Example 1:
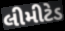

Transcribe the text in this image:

લીમીટેડ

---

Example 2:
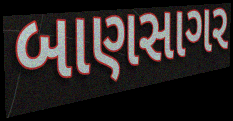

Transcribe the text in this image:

બાણસાગર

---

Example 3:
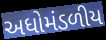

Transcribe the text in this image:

અધોમંડળીય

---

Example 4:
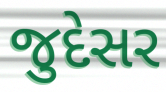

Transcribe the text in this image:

જુદેસર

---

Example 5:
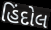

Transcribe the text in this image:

હિંદોલ